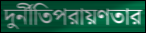
দুর্নীতিপরায়ণতার